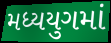
મધ્યયુગમાં